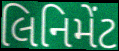
લિનિમેંટ